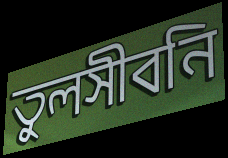
তুলসীবনি